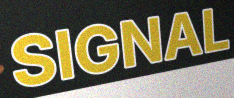
SIGNAL